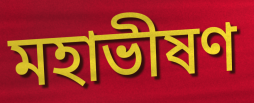
মহাভীষণ